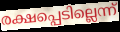
രക്ഷപ്പെടില്ലെന്ന്